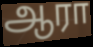
ஆரா